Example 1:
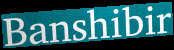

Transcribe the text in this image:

Banshibir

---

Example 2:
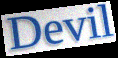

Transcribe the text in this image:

Devil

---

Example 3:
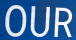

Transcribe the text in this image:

OUR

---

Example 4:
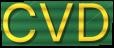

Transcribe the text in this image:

CVD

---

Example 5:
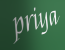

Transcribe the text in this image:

priya